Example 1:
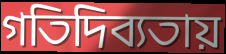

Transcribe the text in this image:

গতিদিব্যতায়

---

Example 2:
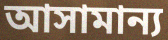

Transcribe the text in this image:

আসামান্য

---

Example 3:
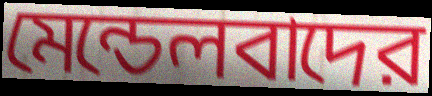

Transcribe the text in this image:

মেন্ডেলবাদের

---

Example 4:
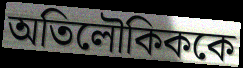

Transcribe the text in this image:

অতিলৌকিককে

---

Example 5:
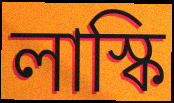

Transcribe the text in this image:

লাস্কি